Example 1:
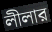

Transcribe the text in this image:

লীলার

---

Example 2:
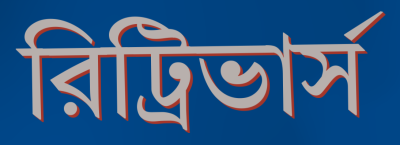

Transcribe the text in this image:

রিট্রিভার্স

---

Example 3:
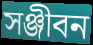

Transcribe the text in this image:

সঞ্জীবন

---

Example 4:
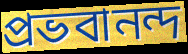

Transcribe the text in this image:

প্রভবানন্দ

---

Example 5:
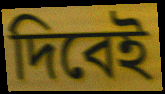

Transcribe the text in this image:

দিবেই